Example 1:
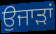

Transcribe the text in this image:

ਉਜਾੜਾਂ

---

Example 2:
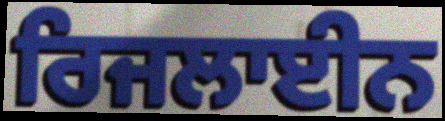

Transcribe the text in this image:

ਰਿਜਲਾਈਨ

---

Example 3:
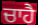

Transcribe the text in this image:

ਚਾਹੈ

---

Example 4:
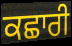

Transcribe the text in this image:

ਕਛਾਰੀ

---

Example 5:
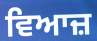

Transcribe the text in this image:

ਵਿਆਜ਼